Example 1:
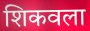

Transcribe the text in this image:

शिकवला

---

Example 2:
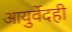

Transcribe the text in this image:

आयुर्वेदही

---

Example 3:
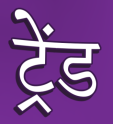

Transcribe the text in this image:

ट्रेंड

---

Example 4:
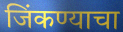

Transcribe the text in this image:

जिंकण्याचा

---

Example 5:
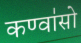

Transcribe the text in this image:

कण्वा॑सो